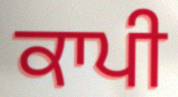
ਕਾਪੀ